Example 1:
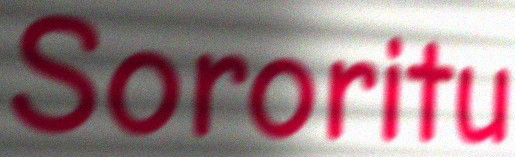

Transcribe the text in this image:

Sororitu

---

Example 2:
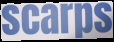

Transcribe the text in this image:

scarps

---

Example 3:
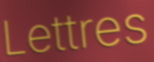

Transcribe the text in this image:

Lettres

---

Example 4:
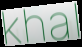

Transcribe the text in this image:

khal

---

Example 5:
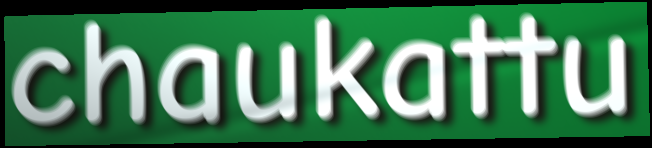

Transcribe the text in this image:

chaukattu